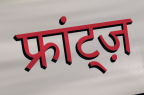
फ्रांट्ज़